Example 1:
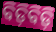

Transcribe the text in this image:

ବିଡ଼ିବିଡ଼ି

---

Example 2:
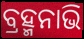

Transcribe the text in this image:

ବ୍ରହ୍ମନାଭି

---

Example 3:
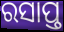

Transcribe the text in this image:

ରସାପ୍ତ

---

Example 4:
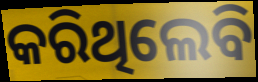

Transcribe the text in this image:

କରିଥିଲେବି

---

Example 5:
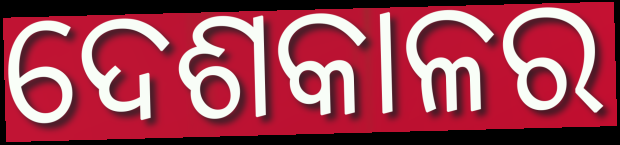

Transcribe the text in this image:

ଦେଶକାଳର